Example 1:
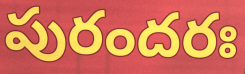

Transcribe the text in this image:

పురందరః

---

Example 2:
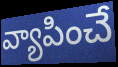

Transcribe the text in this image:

వ్యాపించే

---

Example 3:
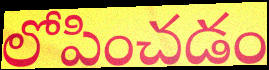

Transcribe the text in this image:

లోపించడం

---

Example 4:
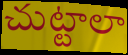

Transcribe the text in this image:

చుట్టాలా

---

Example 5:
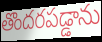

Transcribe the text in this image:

తొందరపడ్డాను